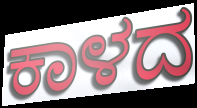
ಕಾಳದ